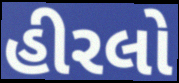
હીરલો